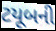
ટયૂબની